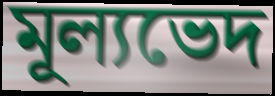
মূল্যভেদ